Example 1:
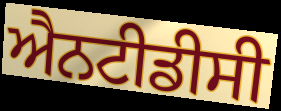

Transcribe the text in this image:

ਐਨਟੀਡੀਸੀ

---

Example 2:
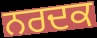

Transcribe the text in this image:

ਨਰਦਕ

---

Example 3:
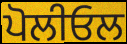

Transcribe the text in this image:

ਪੋਲੀਓਲ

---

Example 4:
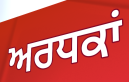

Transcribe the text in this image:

ਅਰਧਕਾਂ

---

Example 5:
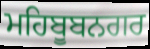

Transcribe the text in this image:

ਮਹਿਬੂਬਨਗਰ